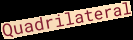
Quadrilateral